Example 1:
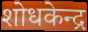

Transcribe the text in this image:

शोधकेन्द्र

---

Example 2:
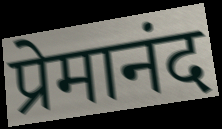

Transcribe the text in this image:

प्रेमानंद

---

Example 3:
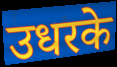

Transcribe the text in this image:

उधरके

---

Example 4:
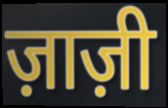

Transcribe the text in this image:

ज़ाज़ी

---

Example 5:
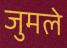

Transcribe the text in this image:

जुमले